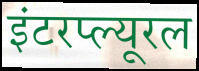
इंटरप्ल्यूरल